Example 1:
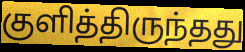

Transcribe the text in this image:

குளித்திருந்தது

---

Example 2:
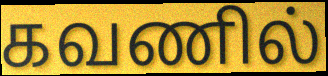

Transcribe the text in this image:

கவணில்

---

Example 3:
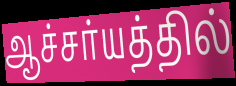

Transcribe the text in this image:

ஆச்சர்யத்தில்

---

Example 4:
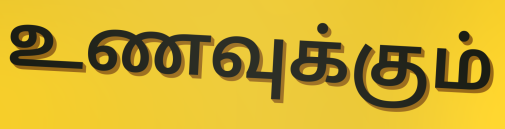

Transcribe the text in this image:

உணவுக்கும்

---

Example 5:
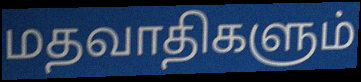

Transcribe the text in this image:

மதவாதிகளும்